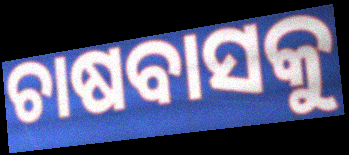
ଚାଷବାସକୁ